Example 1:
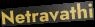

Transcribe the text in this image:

Netravathi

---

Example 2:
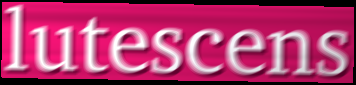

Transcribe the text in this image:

lutescens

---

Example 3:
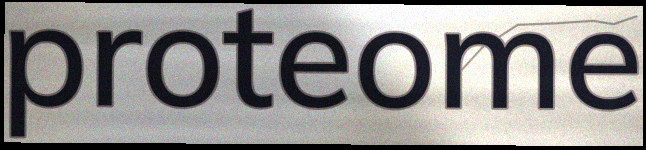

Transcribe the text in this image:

proteome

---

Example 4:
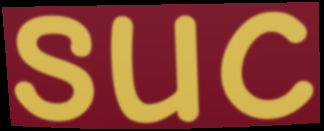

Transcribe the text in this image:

suc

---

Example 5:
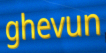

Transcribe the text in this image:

ghevun